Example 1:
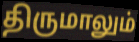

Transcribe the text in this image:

திருமாலும்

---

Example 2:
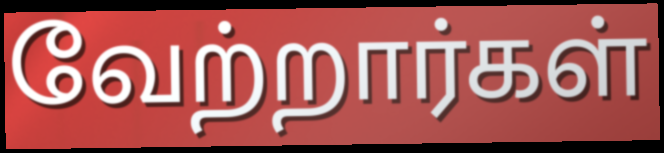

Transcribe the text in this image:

வேற்றார்கள்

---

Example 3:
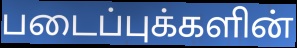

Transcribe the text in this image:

படைப்புக்களின்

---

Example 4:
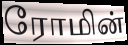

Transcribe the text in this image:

ரோமின்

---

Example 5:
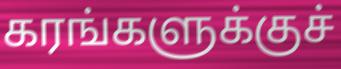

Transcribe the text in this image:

கரங்களுக்குச்